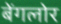
बेंगलोर